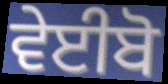
ਵੇਈਬੋ